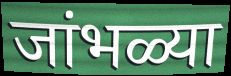
जांभळ्या